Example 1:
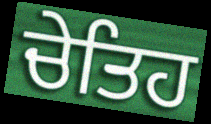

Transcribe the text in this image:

ਚੇਤਿਹ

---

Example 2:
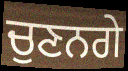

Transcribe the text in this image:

ਚੁਣਨਗੇ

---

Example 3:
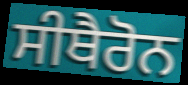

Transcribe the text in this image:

ਸੀਥੈਰੋਨ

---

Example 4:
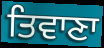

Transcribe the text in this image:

ਤਿਵਾਣਾ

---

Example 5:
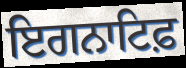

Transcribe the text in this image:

ਇਗਨਾਟਿਫ਼